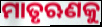
ମାତୃଋଣକୁ